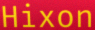
Hixon